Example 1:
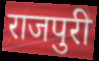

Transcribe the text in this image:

राजपुरी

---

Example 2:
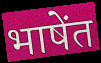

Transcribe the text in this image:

भाषेंत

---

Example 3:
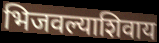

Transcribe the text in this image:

भिजवल्याशिवाय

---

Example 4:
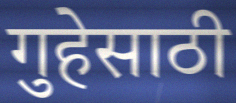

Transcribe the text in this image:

गुहेसाठी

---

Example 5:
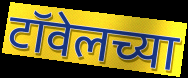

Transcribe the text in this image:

टॉवेलच्या